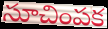
సూచింపక